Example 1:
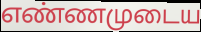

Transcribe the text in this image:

எண்ணமுடைய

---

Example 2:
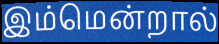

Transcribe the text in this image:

இம்மென்றால்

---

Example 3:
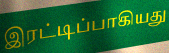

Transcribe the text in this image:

இரட்டிப்பாகியது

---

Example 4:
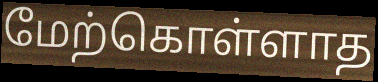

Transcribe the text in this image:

மேற்கொள்ளாத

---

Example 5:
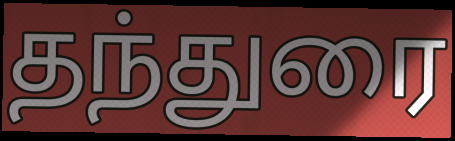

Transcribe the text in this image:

தந்துரை